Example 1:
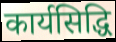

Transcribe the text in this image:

कार्यसिद्धि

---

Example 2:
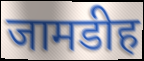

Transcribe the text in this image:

जामडीह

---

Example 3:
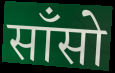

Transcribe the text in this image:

साँसो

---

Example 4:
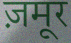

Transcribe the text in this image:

ज़मूर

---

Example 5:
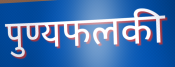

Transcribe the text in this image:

पुण्यफलकी